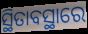
ସ୍ଥିତାବସ୍ଥାରେ